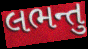
લભન્તુ